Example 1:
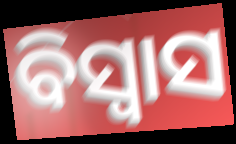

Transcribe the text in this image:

ବିସ୍ବାସ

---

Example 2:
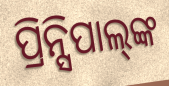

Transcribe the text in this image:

ପ୍ରିନ୍ସିପାଲ୍‍ଙ୍କ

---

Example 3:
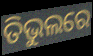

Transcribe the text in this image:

ତିଭୁଲରେ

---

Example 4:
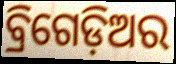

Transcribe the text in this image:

ବ୍ରିଗେଡ଼ିଅର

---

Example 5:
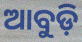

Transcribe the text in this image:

ଆବୁଡ଼ି